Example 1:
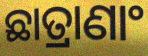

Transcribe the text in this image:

ଛାତ୍ରାଣାଂ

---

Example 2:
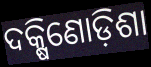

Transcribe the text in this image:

ଦକ୍ଷିଣୋଡ଼ିଶା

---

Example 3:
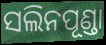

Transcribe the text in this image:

ସଲିନପୂଣ୍ଡା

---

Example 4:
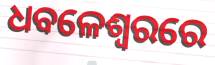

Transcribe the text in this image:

ଧବଳେଶ୍ଵରରେ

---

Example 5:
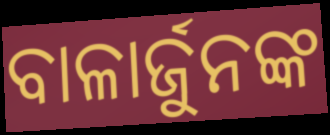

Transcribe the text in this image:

ବାଳାର୍ଜୁନଙ୍କ